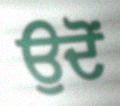
ਉਦੋਂ